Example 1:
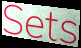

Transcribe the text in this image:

Sets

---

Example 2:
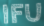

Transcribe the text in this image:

IFU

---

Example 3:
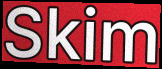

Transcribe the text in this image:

Skim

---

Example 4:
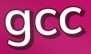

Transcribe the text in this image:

gcc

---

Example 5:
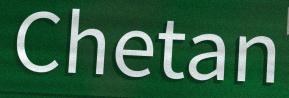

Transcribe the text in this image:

Chetan